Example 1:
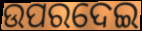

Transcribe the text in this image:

ଉପରଦେଇ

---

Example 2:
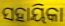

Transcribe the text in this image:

ସହାୟିକା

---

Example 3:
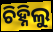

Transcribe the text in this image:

ଚିହ୍ନିଲୁ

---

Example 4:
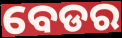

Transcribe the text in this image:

ବେଡର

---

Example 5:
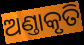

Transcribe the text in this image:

ଅଣ୍ତାକୃତି